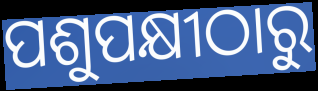
ପଶୁପକ୍ଷୀଠାରୁ